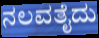
ನಲವತೈದು